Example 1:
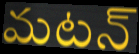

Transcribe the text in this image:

మటన్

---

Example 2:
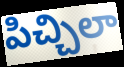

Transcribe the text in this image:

పిచ్చిలా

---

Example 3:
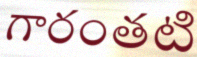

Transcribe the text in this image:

గారంతటి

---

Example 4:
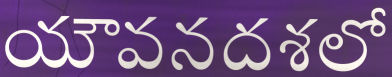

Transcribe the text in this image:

యౌవనదశలో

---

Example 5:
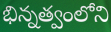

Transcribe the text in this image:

భిన్నత్వంలోని